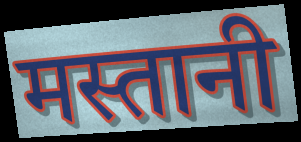
मस्‍तानी